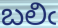
బలిఁ